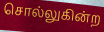
சொல்லுகின்ற